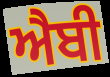
ਐਬੀ